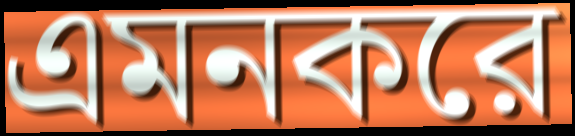
এমনকরে